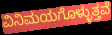
ವಿನಿಮಯಗೊಳ್ಳುತ್ತವೆ